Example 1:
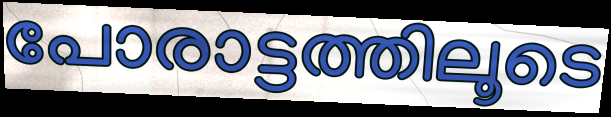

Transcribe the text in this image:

പോരാട്ടത്തിലൂടെ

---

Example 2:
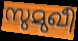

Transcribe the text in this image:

സുമുഖീ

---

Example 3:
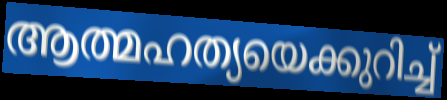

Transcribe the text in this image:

ആത്മഹത്യയെക്കുറിച്ച്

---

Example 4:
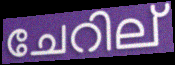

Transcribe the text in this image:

ചേറില്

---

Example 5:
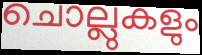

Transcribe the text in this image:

ചൊല്ലുകളും